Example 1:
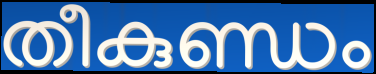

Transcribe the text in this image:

തീകുണ്ഡം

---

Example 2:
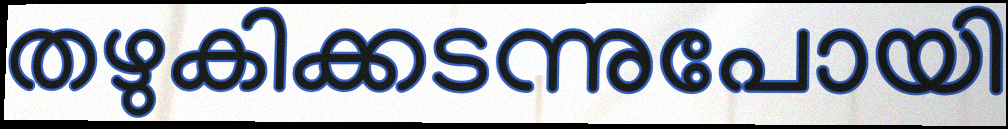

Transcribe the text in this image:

തഴുകിക്കടന്നുപോയി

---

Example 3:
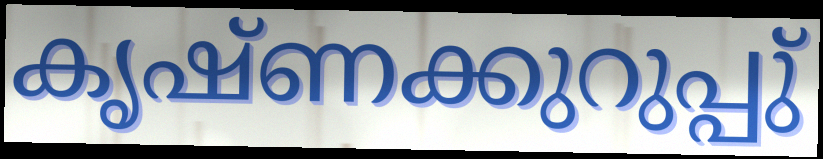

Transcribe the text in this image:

കൃഷ്ണക്കുറുപ്പു്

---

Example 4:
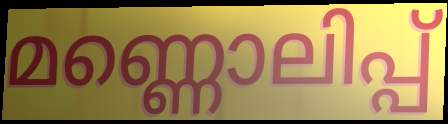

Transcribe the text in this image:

മണ്ണൊലിപ്പ്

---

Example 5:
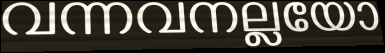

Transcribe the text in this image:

വന്നവനല്ലയോ